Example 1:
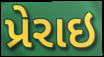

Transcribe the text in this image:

પ્રેરાઇ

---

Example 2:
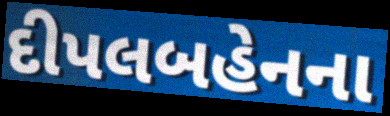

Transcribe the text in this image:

દીપલબહેનના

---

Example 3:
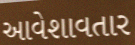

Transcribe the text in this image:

આવેશાવતાર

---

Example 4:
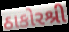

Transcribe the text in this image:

ઠાકોરશ્રી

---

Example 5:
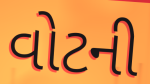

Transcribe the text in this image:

વોટની